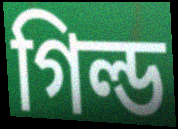
গিল্ড